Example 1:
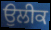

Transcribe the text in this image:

ਉਲੀਕ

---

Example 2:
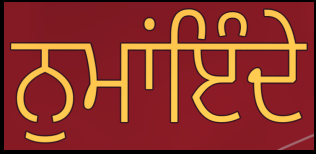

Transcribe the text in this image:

ਨੁਮਾਂਇੰਦੇ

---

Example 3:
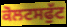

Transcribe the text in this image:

ਕੋਲਟਸਫੁੱਟ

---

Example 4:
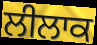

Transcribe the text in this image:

ਲੀਲਾਕ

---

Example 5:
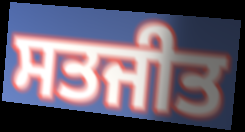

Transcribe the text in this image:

ਸਤਜੀਤ